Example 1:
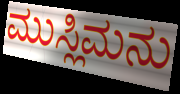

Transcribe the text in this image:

ಮುಸ್ಲಿಮನು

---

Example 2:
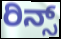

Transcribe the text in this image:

ರಿನ್ಸ್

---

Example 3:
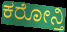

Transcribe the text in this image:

ಕರೋನ್ತಿ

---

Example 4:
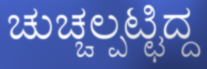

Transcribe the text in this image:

ಚುಚ್ಚಲ್ಪಟ್ಟಿದ್ದ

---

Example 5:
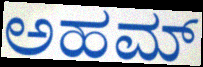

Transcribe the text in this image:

ಅಹಮ್